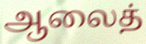
ஆலைத்